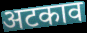
अटकाव